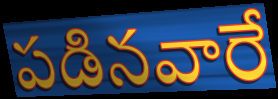
పడినవారే